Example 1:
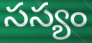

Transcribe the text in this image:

సస్యం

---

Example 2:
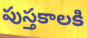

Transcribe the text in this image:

పుస్తకాలకి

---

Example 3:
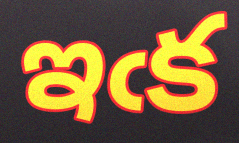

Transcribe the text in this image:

ఇఁక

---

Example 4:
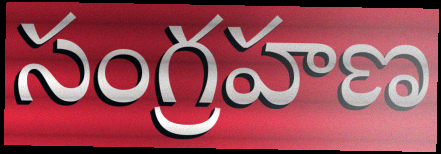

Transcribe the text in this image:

సంగ్రహణ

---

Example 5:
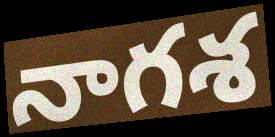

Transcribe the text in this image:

నాగశ